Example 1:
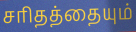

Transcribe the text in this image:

சரிதத்தையும்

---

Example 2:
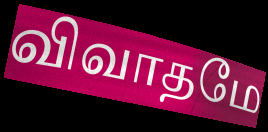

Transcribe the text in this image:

விவாதமே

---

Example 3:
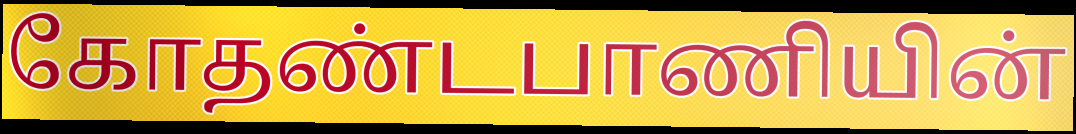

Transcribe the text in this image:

கோதண்டபாணியின்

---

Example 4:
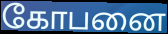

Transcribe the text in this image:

கோபனை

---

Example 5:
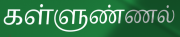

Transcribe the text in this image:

கள்ளுண்ணல்